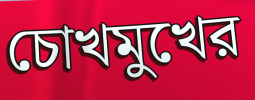
চোখমুখের